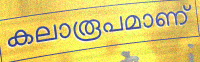
കലാരൂപമാണ്